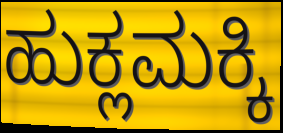
ಹುಕ್ಲಮಕ್ಕಿ